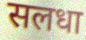
सलधा